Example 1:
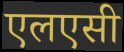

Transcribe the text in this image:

एलएसी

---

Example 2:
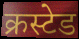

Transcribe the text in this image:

क्रस्टेड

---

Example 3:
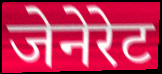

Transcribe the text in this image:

जेनेरेट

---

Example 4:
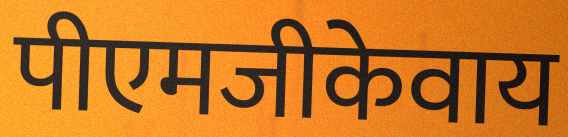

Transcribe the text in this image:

पीएमजीकेवाय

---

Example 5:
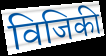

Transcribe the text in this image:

विजिकी